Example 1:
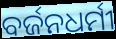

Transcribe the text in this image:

ବର୍ଜନଧର୍ମୀ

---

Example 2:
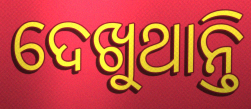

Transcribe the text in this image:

ଦେଖୁଥାନ୍ତି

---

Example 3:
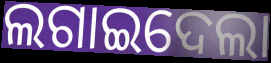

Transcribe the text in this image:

ଲଗାଇଦେଲା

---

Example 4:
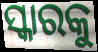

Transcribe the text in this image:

ସ୍କାରକୁ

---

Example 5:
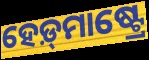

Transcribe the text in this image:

ହେଡ଼୍‌ମାଷ୍ଟ୍ରେ